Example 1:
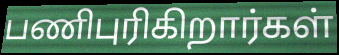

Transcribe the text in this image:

பணிபுரிகிறார்கள்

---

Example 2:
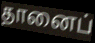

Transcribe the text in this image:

தானைப்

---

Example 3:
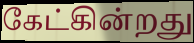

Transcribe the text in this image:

கேட்கின்றது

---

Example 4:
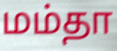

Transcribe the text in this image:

மம்தா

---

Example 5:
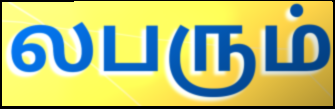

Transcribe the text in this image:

லபரும்